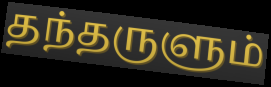
தந்தருளும்